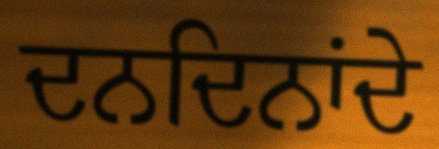
ਦਨਦਿਨਾਂਦੇ